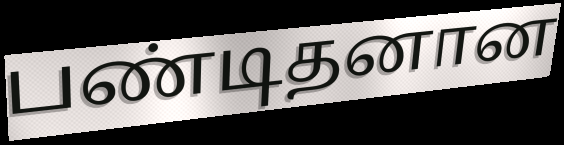
பண்டிதனான